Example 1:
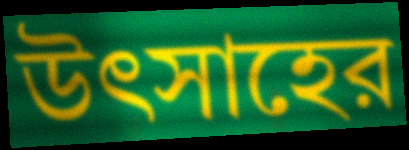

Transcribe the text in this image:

উৎসাহের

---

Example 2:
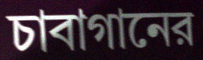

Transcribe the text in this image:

চাবাগানের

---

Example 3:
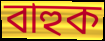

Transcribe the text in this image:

বাহুক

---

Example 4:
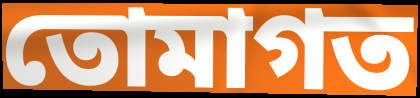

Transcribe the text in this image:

তোমাগত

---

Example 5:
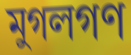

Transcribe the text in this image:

মুগলগণ